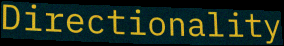
Directionality